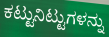
ಕಟ್ಟುನಿಟ್ಟುಗಳನ್ನು